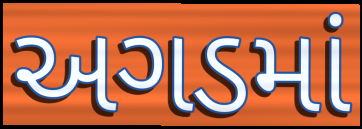
અગડમાં